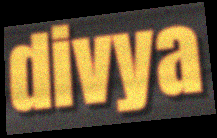
divya